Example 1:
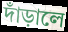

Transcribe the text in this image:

দাঁড়ালে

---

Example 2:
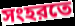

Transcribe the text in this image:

সংহরতে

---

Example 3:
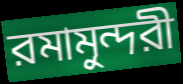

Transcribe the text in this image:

রমামুন্দরী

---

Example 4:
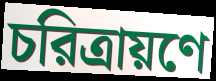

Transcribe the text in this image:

চরিত্রায়ণে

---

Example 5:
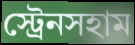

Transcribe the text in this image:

স্ট্রেনসহাম